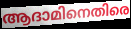
ആദാമിനെതിരെ